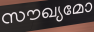
സൗഖ്യമോ